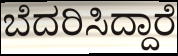
ಬೆದರಿಸಿದ್ದಾರೆ